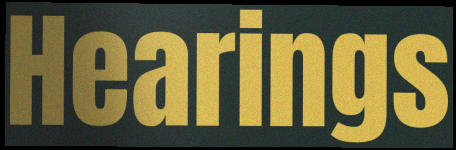
Hearings